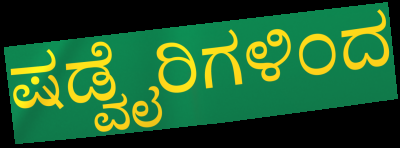
ಷಡ್ವೈರಿಗಳಿಂದ